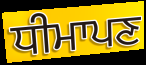
ਧੀਮਾਪਣ